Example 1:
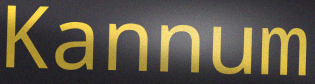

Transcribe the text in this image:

Kannum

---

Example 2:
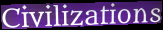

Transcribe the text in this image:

Civilizations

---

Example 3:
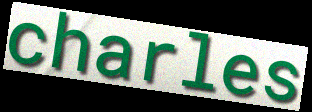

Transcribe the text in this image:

charles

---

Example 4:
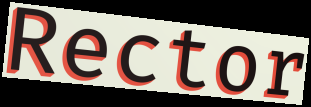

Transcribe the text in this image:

Rector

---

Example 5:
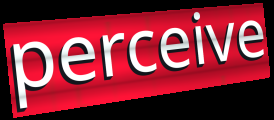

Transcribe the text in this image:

perceive